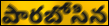
పారబోసిన